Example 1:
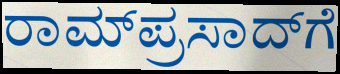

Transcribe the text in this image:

ರಾಮ್‌ಪ್ರಸಾದ್‌ಗೆ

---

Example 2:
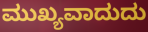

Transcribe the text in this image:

ಮುಖ್ಯವಾದುದು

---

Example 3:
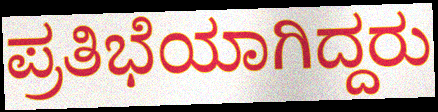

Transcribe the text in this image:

ಪ್ರತಿಭೆಯಾಗಿದ್ದರು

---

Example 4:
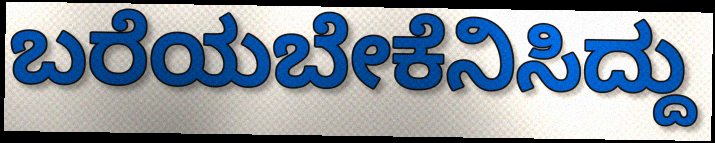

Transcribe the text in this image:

ಬರೆಯಬೇಕೆನಿಸಿದ್ದು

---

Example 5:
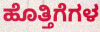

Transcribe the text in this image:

ಹೊತ್ತಿಗೆಗಳ